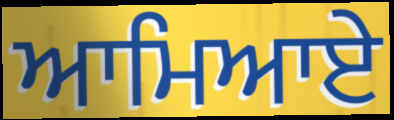
ਆਮਿਆਏ